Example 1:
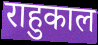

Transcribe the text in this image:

राहुकाल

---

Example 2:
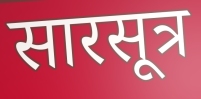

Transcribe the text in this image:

सारसूत्र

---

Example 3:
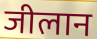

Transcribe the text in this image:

जीलान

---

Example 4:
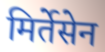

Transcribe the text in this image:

मिर्तेसेन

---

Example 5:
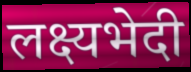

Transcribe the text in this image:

लक्ष्यभेदी